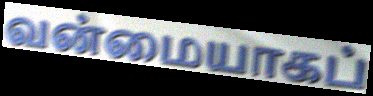
வன்மையாகப்